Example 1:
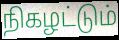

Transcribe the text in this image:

நிகழட்டும்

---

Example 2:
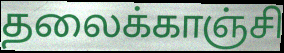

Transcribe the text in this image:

தலைக்காஞ்சி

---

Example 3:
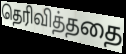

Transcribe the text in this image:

தெரிவித்ததை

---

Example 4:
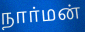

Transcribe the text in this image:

நார்மன்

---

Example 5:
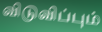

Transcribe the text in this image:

விடுவிப்பும்